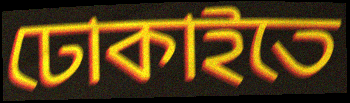
ঢোকাইতে